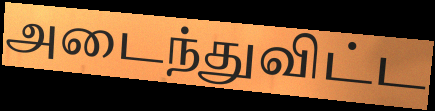
அடைந்துவிட்ட